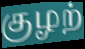
குழற்